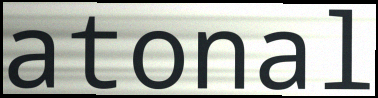
atonal